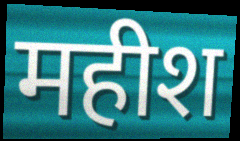
महीश